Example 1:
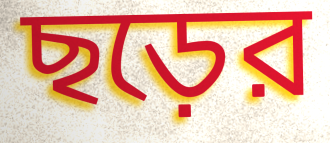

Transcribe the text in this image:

ছড়ের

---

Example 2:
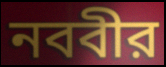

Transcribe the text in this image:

নববীর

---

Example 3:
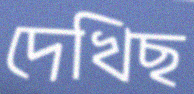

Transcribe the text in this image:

দেখিছ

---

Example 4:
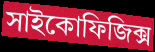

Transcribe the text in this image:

সাইকোফিজিক্স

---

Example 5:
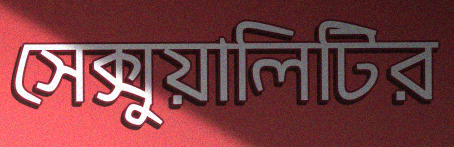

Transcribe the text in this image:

সেক্সুয়ালিটির